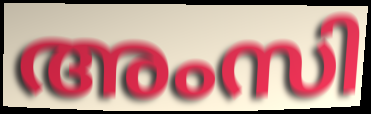
അംസി